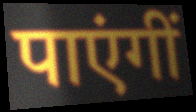
पाएंगीं